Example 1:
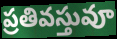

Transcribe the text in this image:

ప్రతివస్తువూ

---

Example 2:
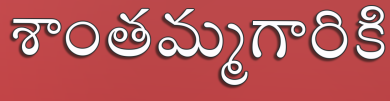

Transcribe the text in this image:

శాంతమ్మగారికి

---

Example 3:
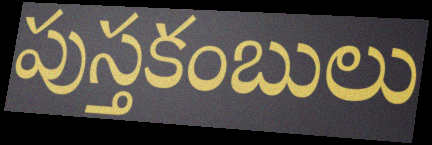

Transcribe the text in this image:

పుస్తకంబులు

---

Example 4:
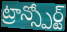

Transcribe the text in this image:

ట్రాన్స్పోర్ట్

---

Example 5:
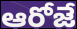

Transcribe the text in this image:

ఆరోజే